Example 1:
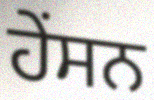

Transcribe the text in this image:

ਹੇਂਸਨ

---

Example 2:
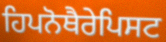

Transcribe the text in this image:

ਹਿਪਨੋਥੈਰੇਪਿਸਟ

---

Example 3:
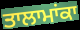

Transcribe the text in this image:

ਤਾਲਾਮਾਂਕਾ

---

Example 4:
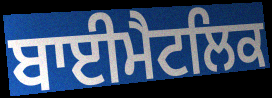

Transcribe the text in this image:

ਬਾਈਮੈਟਲਿਕ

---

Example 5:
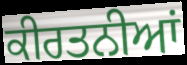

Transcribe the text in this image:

ਕੀਰਤਨੀਆਂ